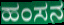
ಹಂಸನ